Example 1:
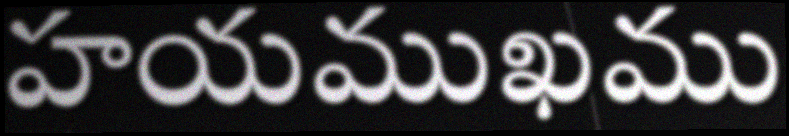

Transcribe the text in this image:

హయముఖము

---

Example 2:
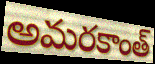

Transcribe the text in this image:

అమరకాంత్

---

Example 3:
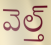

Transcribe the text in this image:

వెల్త్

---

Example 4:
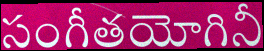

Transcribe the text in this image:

సంగీతయోగినీ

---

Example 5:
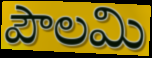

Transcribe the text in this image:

పౌలమి